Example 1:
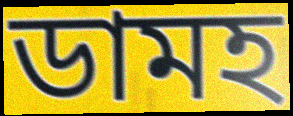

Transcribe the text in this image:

ডামহ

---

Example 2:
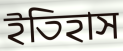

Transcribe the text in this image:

ইতিহাস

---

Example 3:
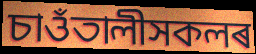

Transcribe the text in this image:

চাওঁতালীসকলৰ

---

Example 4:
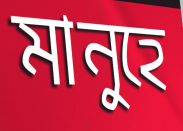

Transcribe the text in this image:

মানুহে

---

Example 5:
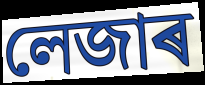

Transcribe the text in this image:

লেজাৰ